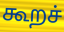
கூறச்